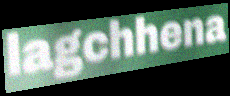
lagchhena